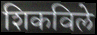
शिकविले